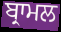
ਬ੍ਰਾਮਲ